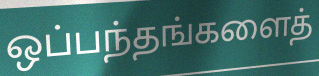
ஒப்பந்தங்களைத்